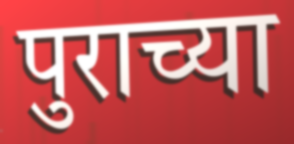
पुराच्या